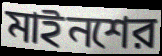
মাইনশের